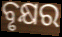
ବୃକ୍ଷର